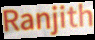
Ranjith